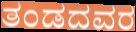
ತಂಡದವರ